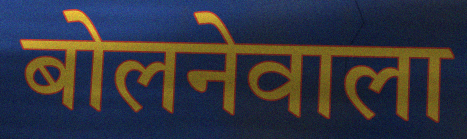
बोलनेवाला